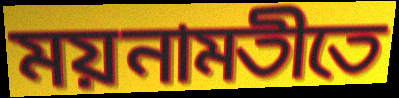
ময়নামতীতে